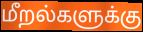
மீறல்களுக்கு